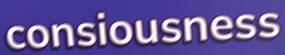
consiousness